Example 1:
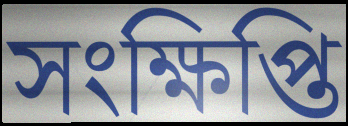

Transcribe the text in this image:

সংক্ষিপ্তি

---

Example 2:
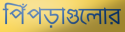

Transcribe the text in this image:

পিঁপড়াগুলোর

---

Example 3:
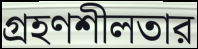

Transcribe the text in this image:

গ্রহণশীলতার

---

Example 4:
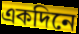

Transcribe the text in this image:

একদিনে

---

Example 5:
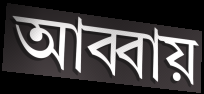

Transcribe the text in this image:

আব্বায়